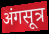
अंगसूत्र